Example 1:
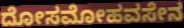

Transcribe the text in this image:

ದೋಸಮೋಹವಸೇನ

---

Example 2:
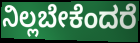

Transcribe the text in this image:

ನಿಲ್ಲಬೇಕೆಂದರೆ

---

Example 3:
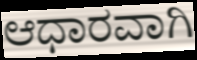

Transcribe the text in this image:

ಆಧಾರವಾಗಿ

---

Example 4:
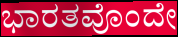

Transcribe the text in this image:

ಭಾರತವೊಂದೇ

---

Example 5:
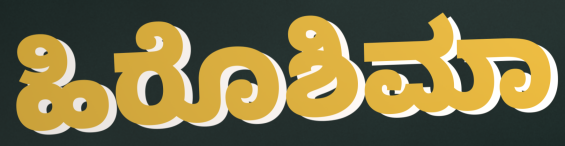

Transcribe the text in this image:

ಹಿರೊಶಿಮಾ